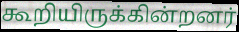
கூறியிருக்கின்றனர்